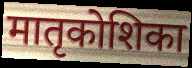
मातृकोशिका